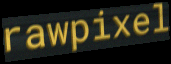
rawpixel